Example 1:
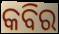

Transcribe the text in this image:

କବିର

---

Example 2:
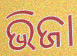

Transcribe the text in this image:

ଭିଜା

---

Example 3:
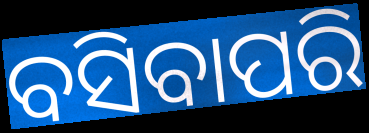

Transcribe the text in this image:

ବସିବାପରି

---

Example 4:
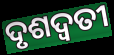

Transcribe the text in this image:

ଦୃଶଦ୍ୱତୀ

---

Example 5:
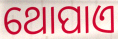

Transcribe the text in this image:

ଥୋପାଏ